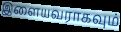
இளையவராகவும்